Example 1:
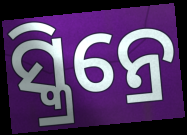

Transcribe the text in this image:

ସ୍କ୍ରିନ୍ରେ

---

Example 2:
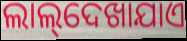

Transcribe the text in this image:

ଲାଲ୍‌ଦେଖାଯାଏ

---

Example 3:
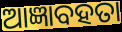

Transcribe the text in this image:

ଆଜ୍ଞାବହତା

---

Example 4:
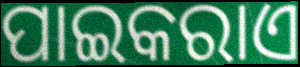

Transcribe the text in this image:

ପାଇକରାଏ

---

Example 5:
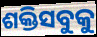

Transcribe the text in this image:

ଶକ୍ତିସବୁକୁ